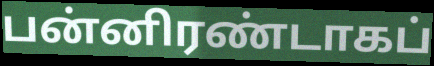
பன்னிரண்டாகப்